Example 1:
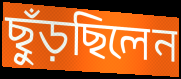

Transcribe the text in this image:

ছুঁড়ছিলেন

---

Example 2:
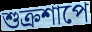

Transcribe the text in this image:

শুক্রশাপে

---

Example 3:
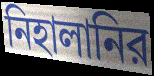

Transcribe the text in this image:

নিহালানির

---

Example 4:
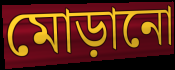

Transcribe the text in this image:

মোড়ানো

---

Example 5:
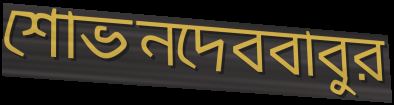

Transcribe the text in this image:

শোভনদেববাবুর